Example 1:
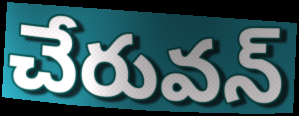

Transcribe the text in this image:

చేరువన్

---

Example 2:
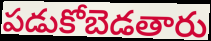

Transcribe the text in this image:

పడుకోబెడతారు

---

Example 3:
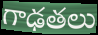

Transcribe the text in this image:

గాఢతలు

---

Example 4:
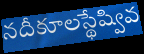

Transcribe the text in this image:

నదీకూలస్థేష్వివ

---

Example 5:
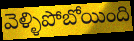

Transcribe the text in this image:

వెళ్ళిపోబోయింది